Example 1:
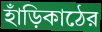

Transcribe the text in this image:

হাঁড়িকাঠের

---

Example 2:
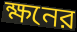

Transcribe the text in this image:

ক্ষনের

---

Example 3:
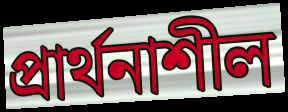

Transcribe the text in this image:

প্রার্থনাশীল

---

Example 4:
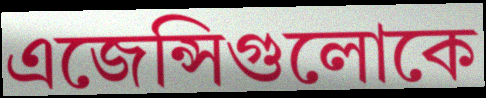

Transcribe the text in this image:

এজেন্সিগুলোকে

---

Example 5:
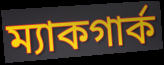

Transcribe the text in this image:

ম্যাকগার্ক